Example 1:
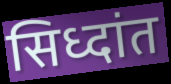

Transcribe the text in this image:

सिध्दांत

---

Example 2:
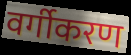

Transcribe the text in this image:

वर्गीकरण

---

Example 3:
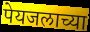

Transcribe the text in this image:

पेयजलाच्या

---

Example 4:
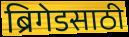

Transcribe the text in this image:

ब्रिगेडसाठी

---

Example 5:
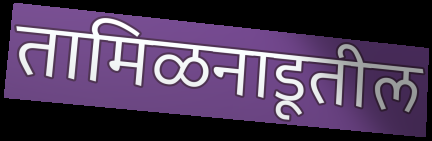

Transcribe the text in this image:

तामिळनाडूतील